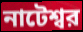
নাটেশ্বর